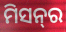
ମିସନ୍‌ର